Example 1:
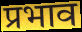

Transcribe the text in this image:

प्रभाव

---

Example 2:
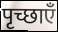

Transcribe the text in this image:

पृच्छाएँ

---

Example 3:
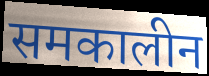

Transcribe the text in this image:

समकालीन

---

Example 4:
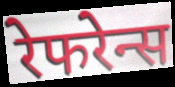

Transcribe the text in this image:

रेफरेन्स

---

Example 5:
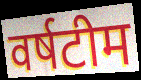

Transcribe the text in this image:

वर्षटीम